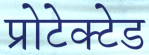
प्रोटेक्टेड